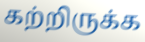
கற்றிருக்க